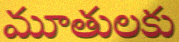
మూతులకు